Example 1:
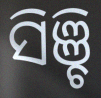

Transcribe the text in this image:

ସିଞ୍ଚି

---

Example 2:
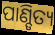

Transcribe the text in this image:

ପାଣ୍ଡିତ୍ୟ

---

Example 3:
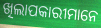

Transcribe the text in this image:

ଖିଲାପକାରୀମାନେ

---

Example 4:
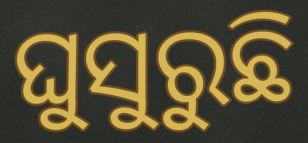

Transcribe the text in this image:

ଘୁସୁରୁଛି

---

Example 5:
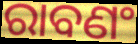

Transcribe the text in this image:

ରାବଣଂ